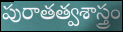
పురాతత్వశాస్త్రం